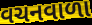
વચનવાળા